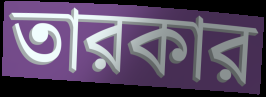
তারকার